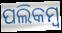
ପଲିକମ୍ବ